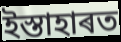
ইস্তাহাৰত